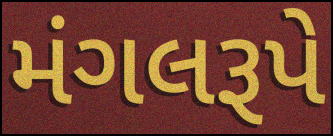
મંગલરૂપે